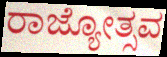
ರಾಜ್ಯೋತ್ಸವ